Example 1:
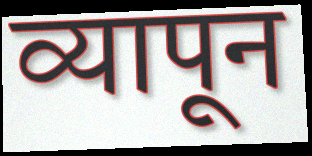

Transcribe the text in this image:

व्यापून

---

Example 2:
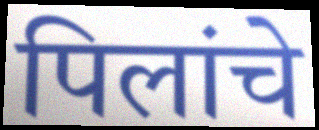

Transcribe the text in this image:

पिलांचे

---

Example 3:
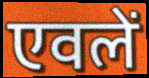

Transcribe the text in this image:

एवलें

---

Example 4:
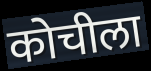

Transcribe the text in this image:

कोचीला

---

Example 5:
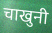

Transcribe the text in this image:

चाखुनी